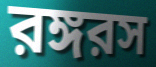
রঙ্গরস